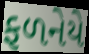
ફળનેયે